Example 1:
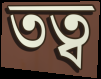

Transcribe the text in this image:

তত্ব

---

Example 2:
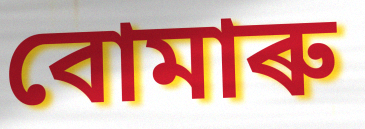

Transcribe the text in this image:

বোমাৰু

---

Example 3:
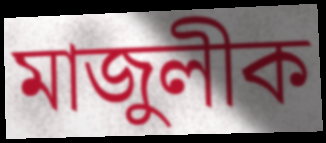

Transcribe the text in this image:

মাজুলীক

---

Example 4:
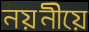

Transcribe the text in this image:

নয়নীয়ে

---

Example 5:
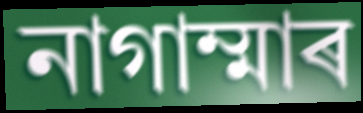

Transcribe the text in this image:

নাগাম্মাৰ